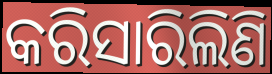
କରିସାରିଲିଣି